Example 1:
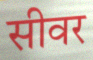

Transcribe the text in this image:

सीवर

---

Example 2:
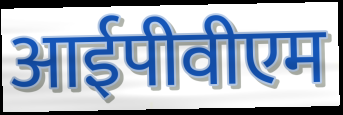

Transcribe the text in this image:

आईपीवीएम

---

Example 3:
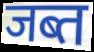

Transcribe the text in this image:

जब्त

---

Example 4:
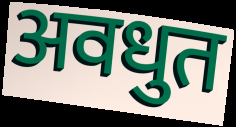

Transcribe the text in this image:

अवधुत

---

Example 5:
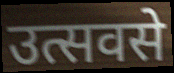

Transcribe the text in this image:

उत्सवसे